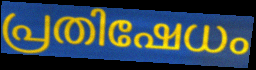
പ്രതിഷേധം